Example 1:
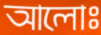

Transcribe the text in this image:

আলোঃ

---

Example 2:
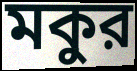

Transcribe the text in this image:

মকুর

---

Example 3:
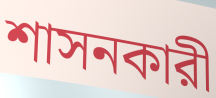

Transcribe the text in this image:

শাসনকারী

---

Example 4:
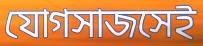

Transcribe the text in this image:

যোগসাজসেই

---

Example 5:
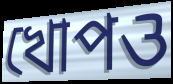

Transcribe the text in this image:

খোপও